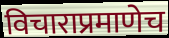
विचाराप्रमाणेच